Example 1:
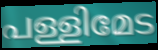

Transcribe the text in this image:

പള്ളിമേട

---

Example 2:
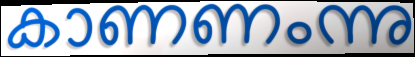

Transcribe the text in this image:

കാണണംന്നു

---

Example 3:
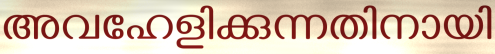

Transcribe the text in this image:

അവഹേളിക്കുന്നതിനായി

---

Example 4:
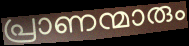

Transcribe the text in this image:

പ്രാണന്മാരും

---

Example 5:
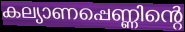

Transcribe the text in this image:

കല്യാണപ്പെണ്ണിന്റെ